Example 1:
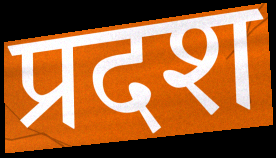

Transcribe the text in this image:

प्रदश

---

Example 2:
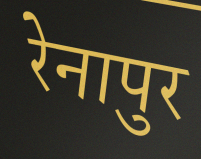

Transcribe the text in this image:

रेनापुर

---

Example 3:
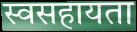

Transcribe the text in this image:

स्‍वसहायता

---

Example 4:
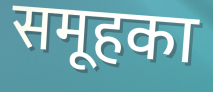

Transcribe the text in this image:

समूहका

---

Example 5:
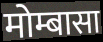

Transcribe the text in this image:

मोम्बासा